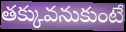
తక్కువనుకుంటే